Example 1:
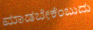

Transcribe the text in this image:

ಮಾಡಬೇಕೆಂಬುದು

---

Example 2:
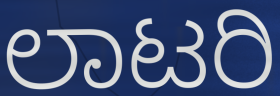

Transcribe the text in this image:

ಲಾಟರಿ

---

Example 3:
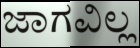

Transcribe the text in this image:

ಜಾಗವಿಲ್ಲ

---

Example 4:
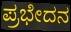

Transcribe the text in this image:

ಪ್ರಭೇದನ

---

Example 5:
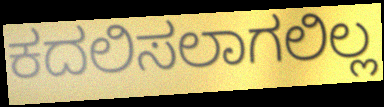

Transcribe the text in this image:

ಕದಲಿಸಲಾಗಲಿಲ್ಲ